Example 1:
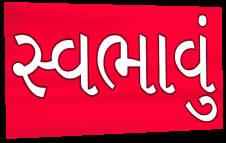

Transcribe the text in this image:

સ્વભાવું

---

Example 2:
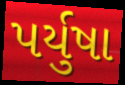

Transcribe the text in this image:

પર્યુષા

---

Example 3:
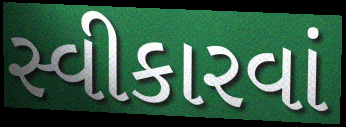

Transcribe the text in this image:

સ્વીકારવાં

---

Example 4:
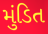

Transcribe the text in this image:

મુંડિત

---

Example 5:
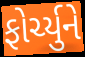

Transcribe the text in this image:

ફોર્ચ્યુને